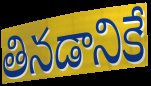
తినడానికే